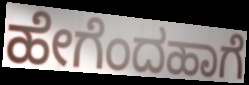
ಹೇಗೆಂದಹಾಗೆ